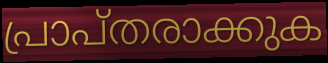
പ്രാപ്തരാക്കുക